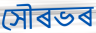
সৌৰভৰ